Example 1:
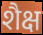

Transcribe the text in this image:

शैक्ष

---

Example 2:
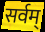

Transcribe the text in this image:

सर्वम्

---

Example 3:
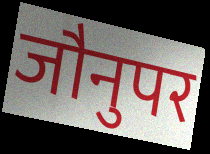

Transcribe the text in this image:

जौनुपर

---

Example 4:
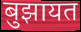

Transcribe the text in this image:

बुझायत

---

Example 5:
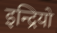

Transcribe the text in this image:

इन्द्रियो